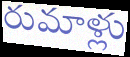
రుమాళ్లు